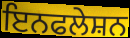
ਇਨਫਲੇਸ਼ਨ